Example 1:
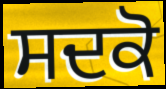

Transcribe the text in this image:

ਸਦਕੋ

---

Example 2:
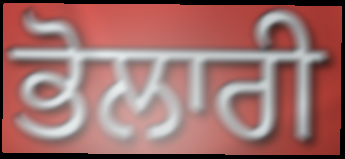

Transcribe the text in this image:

ਭੋਲਾਰੀ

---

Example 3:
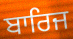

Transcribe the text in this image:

ਬਾਰਿਜ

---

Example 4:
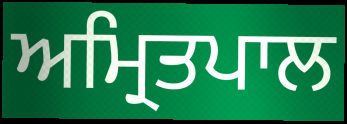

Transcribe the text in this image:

ਅਮ੍ਰਿਤਪਾਲ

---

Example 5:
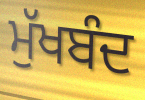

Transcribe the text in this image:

ਮੁੱਖਬੰਦ